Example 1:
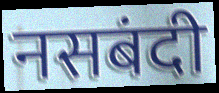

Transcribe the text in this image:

नसबंदी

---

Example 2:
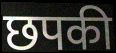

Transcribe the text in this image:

छपकी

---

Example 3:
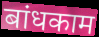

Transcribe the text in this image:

बांधकाम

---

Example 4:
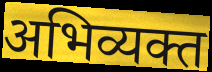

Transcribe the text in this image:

अभिव्यक्त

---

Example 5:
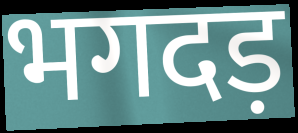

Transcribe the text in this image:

भगदड़